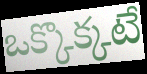
ఒక్కొక్కటే